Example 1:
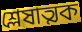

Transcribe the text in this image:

শ্লেষাত্মক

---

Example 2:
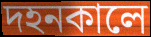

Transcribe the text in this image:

দহনকালে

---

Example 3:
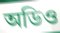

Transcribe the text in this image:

অডিও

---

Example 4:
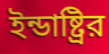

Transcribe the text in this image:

ইন্ডাষ্ট্রির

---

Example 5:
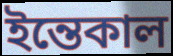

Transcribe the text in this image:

ইন্তেকাল